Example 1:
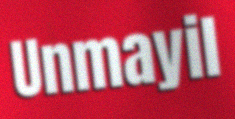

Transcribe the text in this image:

Unmayil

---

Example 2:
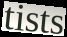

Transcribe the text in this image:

tists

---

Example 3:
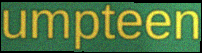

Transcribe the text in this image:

umpteen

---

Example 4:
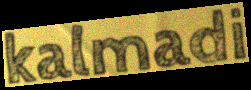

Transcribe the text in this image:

kalmadi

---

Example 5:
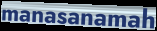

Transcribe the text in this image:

manasanamah